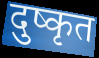
दुष्कृत